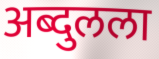
अब्दुलला